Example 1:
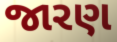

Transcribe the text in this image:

જારણ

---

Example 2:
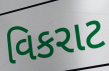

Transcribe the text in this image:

વિકરાટ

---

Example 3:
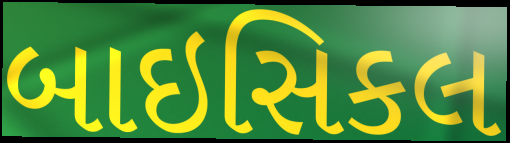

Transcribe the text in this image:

બાઇસિકલ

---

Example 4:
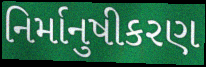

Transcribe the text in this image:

નિર્માનુષીકરણ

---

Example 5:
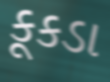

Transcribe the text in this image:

કૂકડા